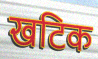
खटिक